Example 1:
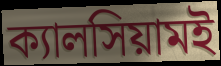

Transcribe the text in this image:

ক্যালসিয়ামই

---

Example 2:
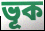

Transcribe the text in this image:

ভূক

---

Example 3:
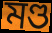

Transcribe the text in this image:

মণ্ড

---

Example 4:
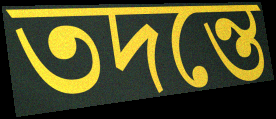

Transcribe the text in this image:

তদন্তে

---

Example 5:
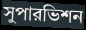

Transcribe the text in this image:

সুপারভিশন